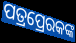
ପତ୍ରପ୍ରେରକଙ୍କ